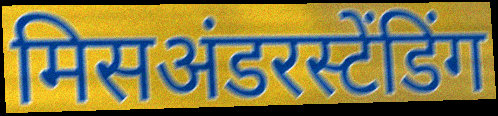
मिसअंडरस्टेंडिंग